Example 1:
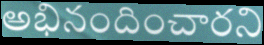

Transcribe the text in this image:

అభినందించారని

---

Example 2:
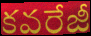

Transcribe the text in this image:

కవరేజీ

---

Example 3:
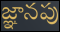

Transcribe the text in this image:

జ్ఞానపు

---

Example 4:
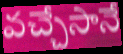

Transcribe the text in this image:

వచ్చేసానే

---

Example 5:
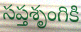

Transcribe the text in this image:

సప్తశృంగికి